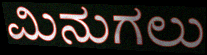
ಮಿನುಗಲು